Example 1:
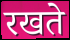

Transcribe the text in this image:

रखते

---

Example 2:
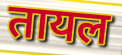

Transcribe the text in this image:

तायल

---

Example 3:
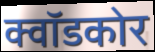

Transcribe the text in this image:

क्वॉडकोर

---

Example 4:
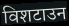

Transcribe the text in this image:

विशटाउन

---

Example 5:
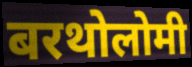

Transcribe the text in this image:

बरथोलोमी